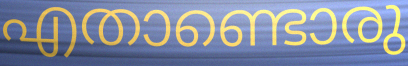
എതാണ്ടൊരു